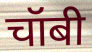
चॉबी